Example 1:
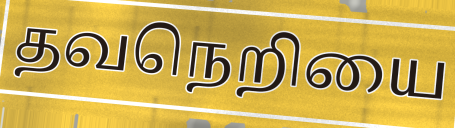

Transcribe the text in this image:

தவநெறியை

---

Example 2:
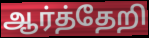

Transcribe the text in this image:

ஆர்த்தேறி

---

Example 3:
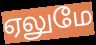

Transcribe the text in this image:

ஏலுமே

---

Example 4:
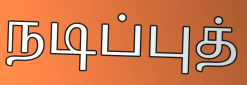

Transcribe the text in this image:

நடிப்புத்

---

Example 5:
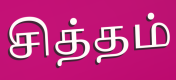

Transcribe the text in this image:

சித்தம்